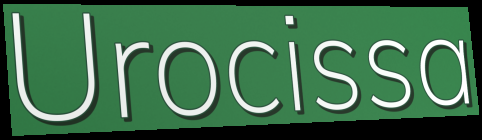
Urocissa